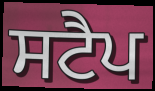
ਸਟੈਪ